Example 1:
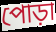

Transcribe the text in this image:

পোড়া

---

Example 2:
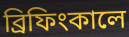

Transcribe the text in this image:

ব্রিফিংকালে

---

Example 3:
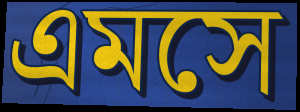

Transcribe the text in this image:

এমসে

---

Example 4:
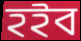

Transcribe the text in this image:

হইব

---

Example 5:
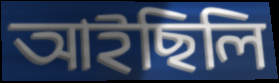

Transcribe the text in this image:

আইছিলি